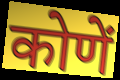
कोणें